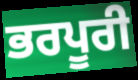
ਭਰਪੂਰੀ